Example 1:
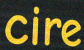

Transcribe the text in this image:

cire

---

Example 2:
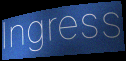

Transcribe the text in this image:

Ingress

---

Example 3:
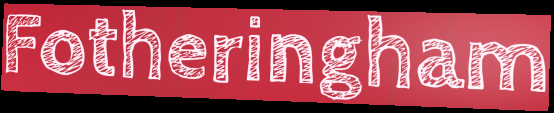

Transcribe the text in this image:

Fotheringham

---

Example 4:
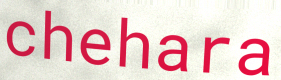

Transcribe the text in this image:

chehara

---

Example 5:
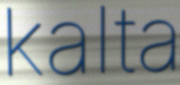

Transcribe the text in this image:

kalta